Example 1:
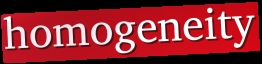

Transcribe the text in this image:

homogeneity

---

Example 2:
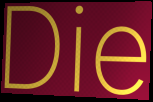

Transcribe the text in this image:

Die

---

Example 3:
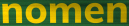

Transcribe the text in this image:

nomen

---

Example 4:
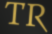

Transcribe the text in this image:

TR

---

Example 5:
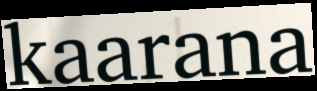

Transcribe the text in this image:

kaarana